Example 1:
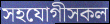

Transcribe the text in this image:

সহযোগীসকল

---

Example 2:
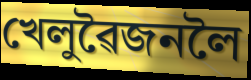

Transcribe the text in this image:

খেলুৱৈজনলৈ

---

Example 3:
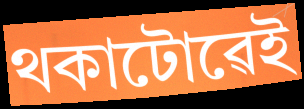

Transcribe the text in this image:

থকাটোৱেই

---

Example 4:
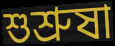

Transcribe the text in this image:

শুশ্ৰুষা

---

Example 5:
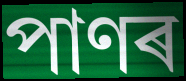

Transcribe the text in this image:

পাণৰ